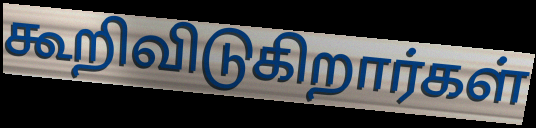
கூறிவிடுகிறார்கள்